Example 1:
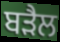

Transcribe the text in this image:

ਬੜੈਲ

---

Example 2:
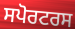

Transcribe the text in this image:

ਸਪੋਰਟਰਸ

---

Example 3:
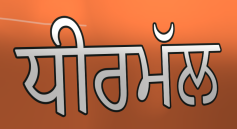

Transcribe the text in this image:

ਧੀਰਮੱਲ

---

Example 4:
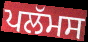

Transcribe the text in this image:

ਪਲੱਮਸ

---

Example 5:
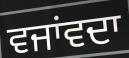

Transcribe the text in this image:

ਵਜਾਂਵਦਾ